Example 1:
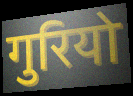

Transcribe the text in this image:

गुरियो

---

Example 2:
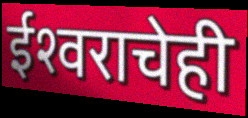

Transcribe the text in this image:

ईश्वराचेही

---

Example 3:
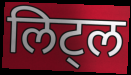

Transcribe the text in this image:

लिट्ल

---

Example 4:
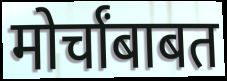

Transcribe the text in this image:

मोर्चांबाबत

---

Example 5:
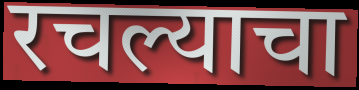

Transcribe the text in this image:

रचल्याचा